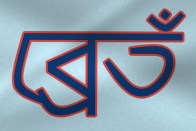
ব্রেতঁ